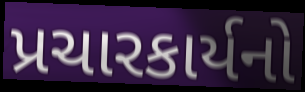
પ્રચારકાર્યનો